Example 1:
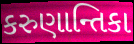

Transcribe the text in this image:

કરુણાન્તિકા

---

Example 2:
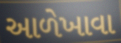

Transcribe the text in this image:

આળેખાવા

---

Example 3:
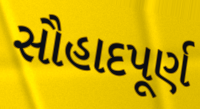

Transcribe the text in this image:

સૌહાદપૂર્ણ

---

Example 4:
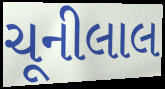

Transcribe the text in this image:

ચૂનીલાલ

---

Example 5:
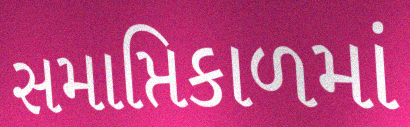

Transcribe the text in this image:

સમાપ્તિકાળમાં